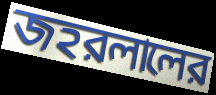
জহরলালের